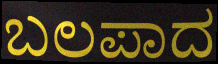
ಬಲಪಾದ